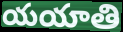
యయాతి